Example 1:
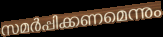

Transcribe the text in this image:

സമർപ്പിക്കണമെന്നും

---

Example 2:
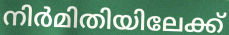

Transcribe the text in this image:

നിർമിതിയിലേക്ക്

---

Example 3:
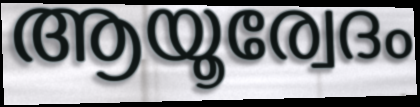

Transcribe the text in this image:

ആയൂര്വേദം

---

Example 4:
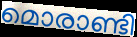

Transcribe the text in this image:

മൊരാണ്ടി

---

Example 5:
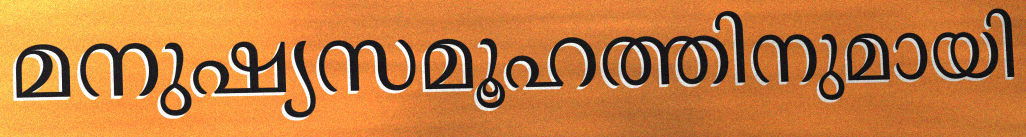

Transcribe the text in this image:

മനുഷ്യസമൂഹത്തിനുമായി